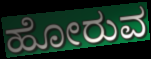
ಹೋರುವ